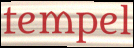
tempel